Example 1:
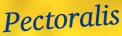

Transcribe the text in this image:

Pectoralis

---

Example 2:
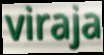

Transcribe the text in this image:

viraja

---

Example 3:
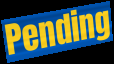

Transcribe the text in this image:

Pending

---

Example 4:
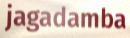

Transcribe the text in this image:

jagadamba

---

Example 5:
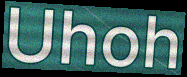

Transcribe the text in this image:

Uhoh